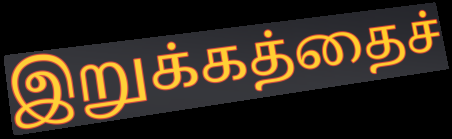
இறுக்கத்தைச்